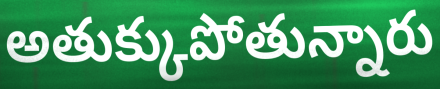
అతుక్కుపోతున్నారు